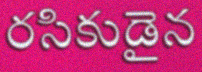
రసికుడైన